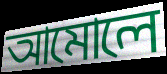
আমোলে